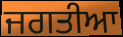
ਜਗਤੀਆ